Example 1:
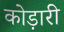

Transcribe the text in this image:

कोड़ारी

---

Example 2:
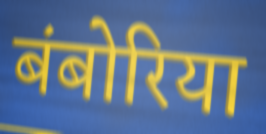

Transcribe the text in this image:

बंबोरिया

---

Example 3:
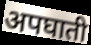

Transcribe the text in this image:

अपघाती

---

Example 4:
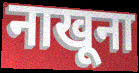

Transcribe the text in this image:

नाखूना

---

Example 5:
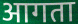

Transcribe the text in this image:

आगता